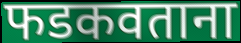
फडकवताना